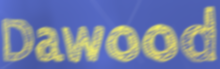
Dawood